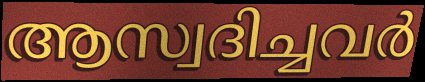
ആസ്വദിച്ചവർ